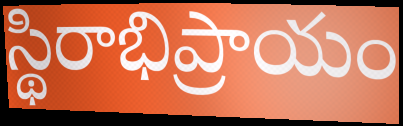
స్థిరాభిప్రాయం